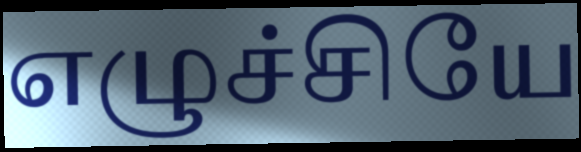
எழுச்சியே